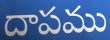
దాపము